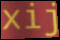
xij